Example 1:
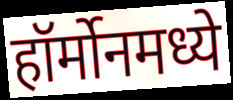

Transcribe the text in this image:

हॉर्मोनमध्ये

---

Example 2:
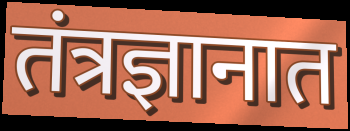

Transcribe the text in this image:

तंत्रज्ञानात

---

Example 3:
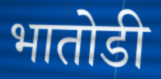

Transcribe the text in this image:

भातोडी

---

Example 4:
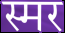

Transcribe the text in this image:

स्मर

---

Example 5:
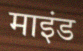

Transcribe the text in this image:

माइंड